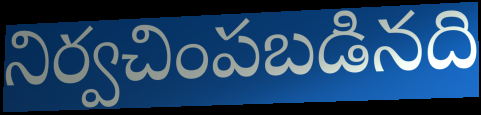
నిర్వచింపబడినది